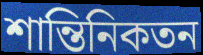
শান্তিনিকতন